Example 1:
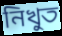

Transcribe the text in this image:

নিখুত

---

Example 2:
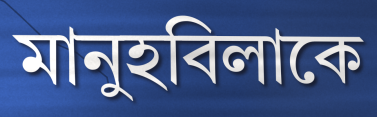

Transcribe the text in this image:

মানুহবিলাকে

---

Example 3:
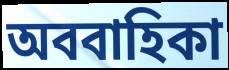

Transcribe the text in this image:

অববাহিকা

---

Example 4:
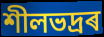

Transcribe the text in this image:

শীলভদ্ৰৰ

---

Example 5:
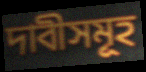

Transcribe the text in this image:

দাবীসমূহ